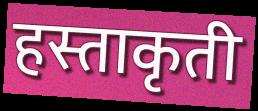
हस्ताकृती